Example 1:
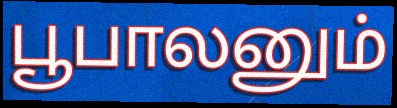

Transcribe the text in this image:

பூபாலனும்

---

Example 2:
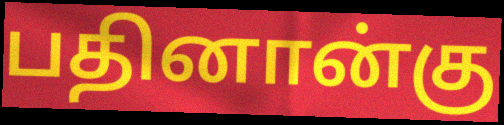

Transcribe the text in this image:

பதினான்கு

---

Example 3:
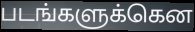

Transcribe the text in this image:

படங்களுக்கென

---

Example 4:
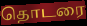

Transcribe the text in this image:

தொடரை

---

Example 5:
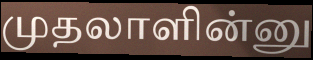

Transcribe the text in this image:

முதலாளின்னு